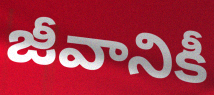
జీవానికీ